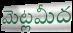
మెట్లమీద